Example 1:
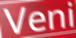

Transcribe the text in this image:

Veni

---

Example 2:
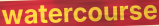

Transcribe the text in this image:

watercourse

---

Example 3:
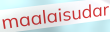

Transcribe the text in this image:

maalaisudar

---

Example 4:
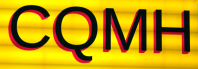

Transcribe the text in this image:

CQMH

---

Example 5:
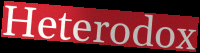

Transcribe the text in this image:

Heterodox